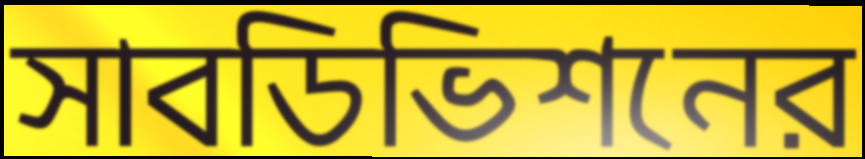
সাবডিভিশনের